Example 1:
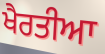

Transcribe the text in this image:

ਖੈਰਤੀਆ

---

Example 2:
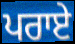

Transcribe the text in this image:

ਪਰਾਏ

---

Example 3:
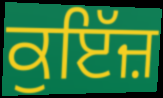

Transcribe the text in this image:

ਕੁਇੱਜ਼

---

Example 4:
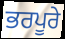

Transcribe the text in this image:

ਭਰਪੂਰੇ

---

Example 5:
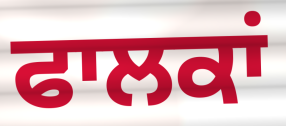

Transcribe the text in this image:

ਫਾਲਕਾਂ